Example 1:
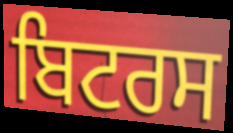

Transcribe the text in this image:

ਬਿਟਰਸ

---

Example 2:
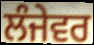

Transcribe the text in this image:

ਲੰਜੇਵਰ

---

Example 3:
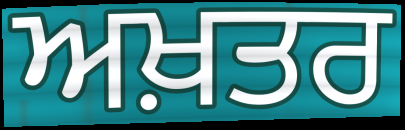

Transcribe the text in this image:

ਅਖ਼ਤਰ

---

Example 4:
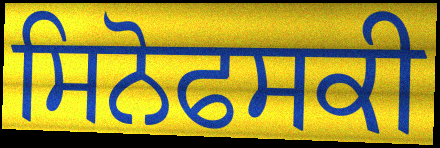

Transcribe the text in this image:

ਸਿਨੋਫਸਕੀ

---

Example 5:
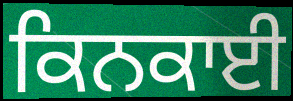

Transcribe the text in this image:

ਕਿਨਕਾਈ